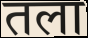
तला